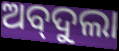
ଅବ୍‌ଦୁଲା